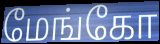
மேங்கோ